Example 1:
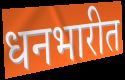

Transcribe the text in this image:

धनभारीत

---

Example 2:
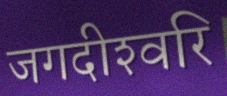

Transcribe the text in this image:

जगदीश्वरि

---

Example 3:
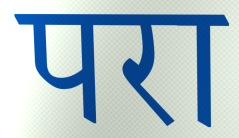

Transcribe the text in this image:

परा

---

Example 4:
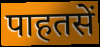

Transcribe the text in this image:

पाहतसें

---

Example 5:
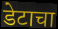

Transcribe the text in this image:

डेटाचा